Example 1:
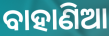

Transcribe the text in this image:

ବାହାଣିଆ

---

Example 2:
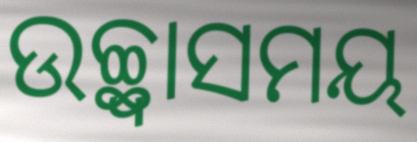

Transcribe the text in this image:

ଉଚ୍ଛ୍ୱାସମୟ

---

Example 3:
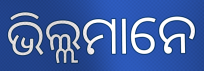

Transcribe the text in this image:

ଭିଲ୍ଲମାନେ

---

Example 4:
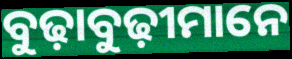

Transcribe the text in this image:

ବୁଢ଼ାବୁଢ଼ୀମାନେ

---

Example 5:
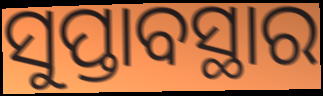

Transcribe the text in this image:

ସୁପ୍ତାବସ୍ଥାର